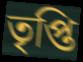
তৃপ্তি